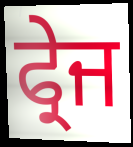
ਫ੍ਰੇਜ